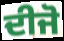
ਦੀਜੋ